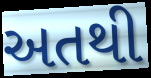
અતથી